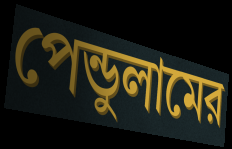
পেন্ডুলামের